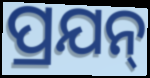
ପ୍ରଯନ୍